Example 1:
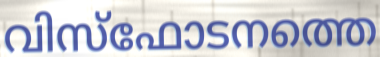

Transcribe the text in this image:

വിസ്ഫോടനത്തെ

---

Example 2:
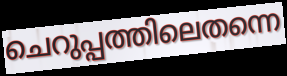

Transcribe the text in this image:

ചെറുപ്പത്തിലെതന്നെ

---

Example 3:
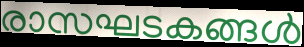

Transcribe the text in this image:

രാസഘടകങ്ങൾ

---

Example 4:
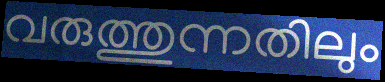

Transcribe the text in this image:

വരുത്തുന്നതിലും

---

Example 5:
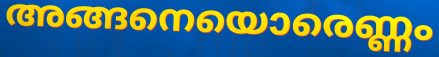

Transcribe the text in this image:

അങ്ങനെയൊരെണ്ണം